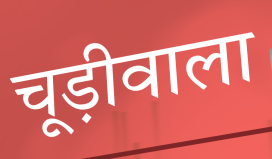
चूड़ीवाला